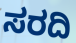
ಸರದಿ